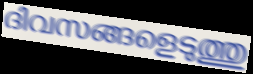
ദിവസങ്ങളെടുത്തു